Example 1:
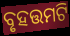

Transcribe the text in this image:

ବୃହତ୍ତମଟି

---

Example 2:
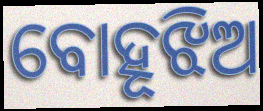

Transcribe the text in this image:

ବୋହୂଝିଅ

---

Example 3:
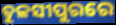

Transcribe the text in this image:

ତୁଳସୀପୁରରେ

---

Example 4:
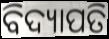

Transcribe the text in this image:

ବିଦ୍ୟାପତି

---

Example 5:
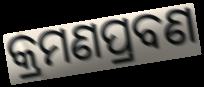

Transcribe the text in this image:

କ୍ରମଣପ୍ରବଣ